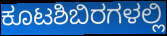
ಕೂಟಶಿಬಿರಗಳಲ್ಲಿ